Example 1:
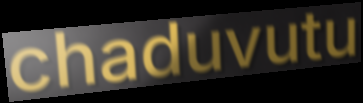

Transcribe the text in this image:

chaduvutu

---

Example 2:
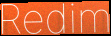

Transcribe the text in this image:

Redim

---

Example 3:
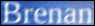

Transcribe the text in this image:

Brenan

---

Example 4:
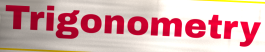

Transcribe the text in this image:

Trigonometry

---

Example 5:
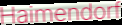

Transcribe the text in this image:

Haimendorf